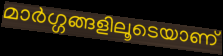
മാർഗ്ഗങ്ങളിലൂടെയാണ്